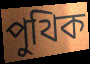
পুথিক